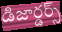
డిజార్డర్స్